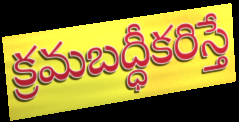
క్రమబద్ధీకరిస్తే